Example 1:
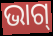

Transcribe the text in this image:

ଭାଗ୍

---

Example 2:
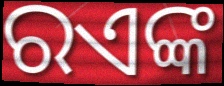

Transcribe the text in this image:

ରଏଙ୍କ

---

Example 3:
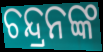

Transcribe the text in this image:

ଚନ୍ଦ୍ରନଙ୍କ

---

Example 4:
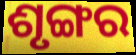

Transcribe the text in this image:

ଶୃଙ୍ଗର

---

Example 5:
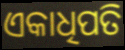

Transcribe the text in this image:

ଏକାଧିପତି